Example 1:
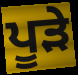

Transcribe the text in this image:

ਪੂੜੇ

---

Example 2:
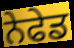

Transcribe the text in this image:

ਨੇਫੇਡ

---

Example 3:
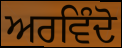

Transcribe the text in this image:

ਅਰਵਿੰਦੋ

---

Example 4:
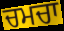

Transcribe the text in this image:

ਚਮਚਾ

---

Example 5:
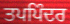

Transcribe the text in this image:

ਤਪਪਿੰਦਰ